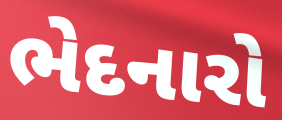
ભેદનારો